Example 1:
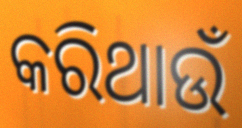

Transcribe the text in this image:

କରିଥାଉଁ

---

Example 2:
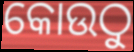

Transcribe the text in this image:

କୋଉଠୁ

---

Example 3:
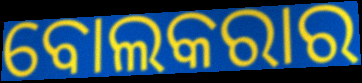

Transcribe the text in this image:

ବୋଲକରାର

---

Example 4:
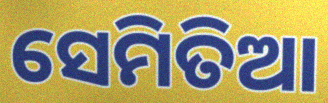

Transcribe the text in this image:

ସେମିତିଆ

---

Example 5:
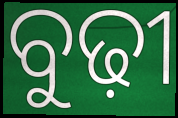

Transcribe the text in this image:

ବୁଢ଼ୀ